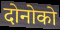
दोनोको